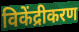
विकेंद्रीकरण